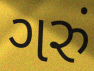
ગરું